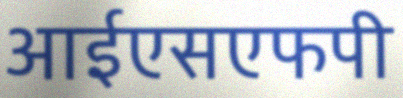
आईएसएफपी